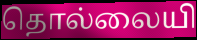
தொல்லையி